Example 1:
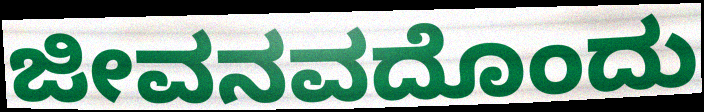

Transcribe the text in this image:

ಜೀವನವದೊಂದು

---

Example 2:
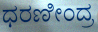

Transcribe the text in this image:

ಧರಣೀಂದ್ರ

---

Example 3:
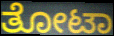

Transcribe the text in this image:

ತೋಟಾ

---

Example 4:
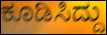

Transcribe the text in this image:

ಕೂಡಿಸಿದ್ದು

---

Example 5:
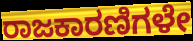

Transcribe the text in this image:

ರಾಜಕಾರಣಿಗಳೇ